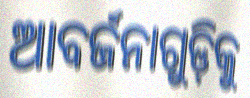
ଆବର୍ଜନାଗୁଡ଼ିକୁ